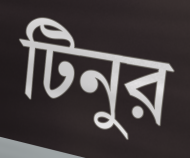
টিনুর